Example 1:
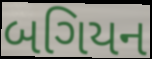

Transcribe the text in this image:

બગિયન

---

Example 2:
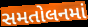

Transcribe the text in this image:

સમતોલનમાં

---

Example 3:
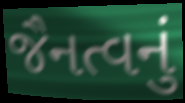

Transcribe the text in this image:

જૈનત્વનું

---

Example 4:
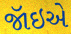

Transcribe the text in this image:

જૉઇએ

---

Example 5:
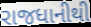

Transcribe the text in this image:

રાજધાનીથી